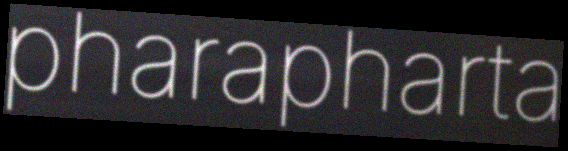
pharapharta